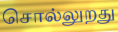
சொல்லுறது